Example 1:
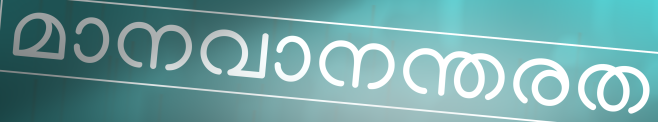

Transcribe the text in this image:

മാനവാനന്തരത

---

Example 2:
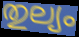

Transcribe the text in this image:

തുല്യം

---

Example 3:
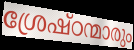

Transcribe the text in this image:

ശ്രേഷ്ഠന്മാരും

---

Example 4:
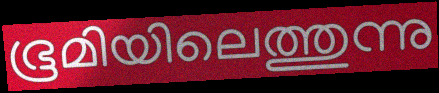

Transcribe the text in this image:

ഭൂമിയിലെത്തുന്നു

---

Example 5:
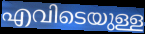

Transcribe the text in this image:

എവിടെയുള്ള